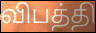
விபத்தி